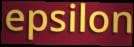
epsilon